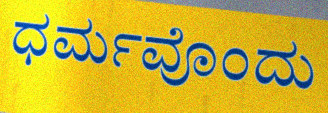
ಧರ್ಮವೊಂದು